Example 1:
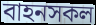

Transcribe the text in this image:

বাহনসকল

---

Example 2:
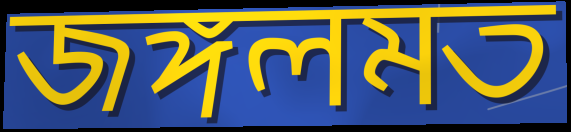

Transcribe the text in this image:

জঙ্গলমত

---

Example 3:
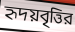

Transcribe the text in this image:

হৃদয়বৃত্তির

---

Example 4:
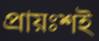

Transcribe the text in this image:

প্রায়ঃশই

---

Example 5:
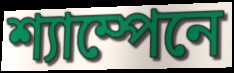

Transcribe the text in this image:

শ্যাম্পেনে